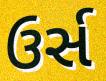
ઉર્સ